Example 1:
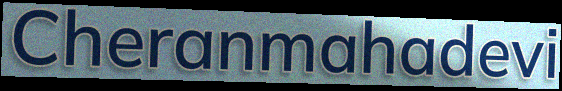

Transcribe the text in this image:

Cheranmahadevi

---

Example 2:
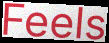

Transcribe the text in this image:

Feels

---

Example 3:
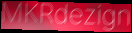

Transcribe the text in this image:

MKRdezign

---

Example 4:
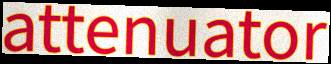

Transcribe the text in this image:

attenuator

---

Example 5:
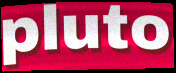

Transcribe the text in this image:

pluto